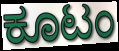
ಕೂಟಂ